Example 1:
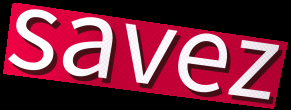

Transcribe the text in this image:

savez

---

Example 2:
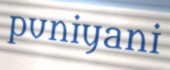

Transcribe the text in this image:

puniyani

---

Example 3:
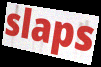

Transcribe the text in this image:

slaps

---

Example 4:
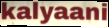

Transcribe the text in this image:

kalyaani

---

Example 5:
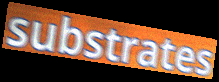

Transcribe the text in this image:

substrates